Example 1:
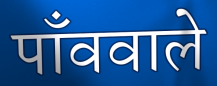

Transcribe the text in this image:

पाँववाले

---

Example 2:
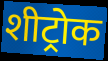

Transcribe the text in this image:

शीट्रोक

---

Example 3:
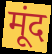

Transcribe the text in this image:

मूंद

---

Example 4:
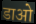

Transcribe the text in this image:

डाओ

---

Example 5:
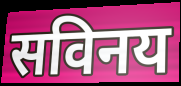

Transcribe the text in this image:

सविनय